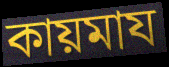
কায়মায